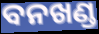
ବନଖଣ୍ଡ